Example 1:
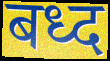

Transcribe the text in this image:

बध्द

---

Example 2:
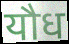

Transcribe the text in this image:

यौध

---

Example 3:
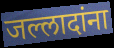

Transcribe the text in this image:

जल्लादांना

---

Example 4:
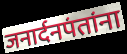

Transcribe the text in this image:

जनार्दनपंतांना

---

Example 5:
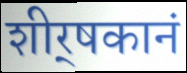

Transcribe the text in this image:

शीर्षकानं